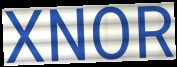
XNOR